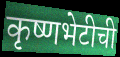
कृष्णभेटीची